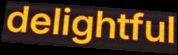
delightful